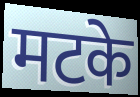
मटके